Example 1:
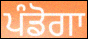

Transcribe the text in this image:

ਪੰਡੋਗਾ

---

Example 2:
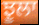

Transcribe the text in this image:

ਝੂਲਾ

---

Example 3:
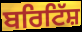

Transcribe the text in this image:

ਬਰਿਟਿੱਸ਼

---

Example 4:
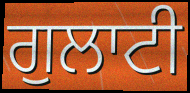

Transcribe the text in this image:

ਗੁਲਾਟੀ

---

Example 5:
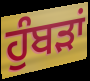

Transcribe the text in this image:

ਹੁੰਬੜਾਂ